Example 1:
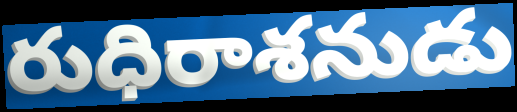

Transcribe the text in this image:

రుధిరాశనుడు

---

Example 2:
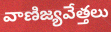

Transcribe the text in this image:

వాణిజ్యవేత్తలు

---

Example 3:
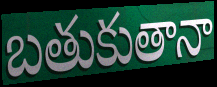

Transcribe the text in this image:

బతుకుతానా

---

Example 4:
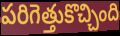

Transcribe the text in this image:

పరిగెత్తుకొచ్చింది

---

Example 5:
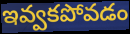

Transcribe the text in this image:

ఇవ్వకపోవడం